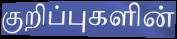
குறிப்புகளின்